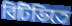
বিটিভিতে